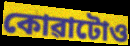
কোৱাটোও